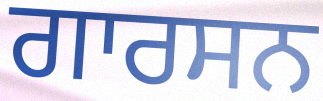
ਗਾਰਸਨ